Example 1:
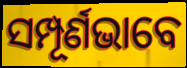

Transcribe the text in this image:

ସମ୍ପୂର୍ଣଭାବେ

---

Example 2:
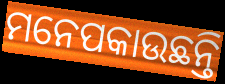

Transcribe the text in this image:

ମନେପକାଉଛନ୍ତି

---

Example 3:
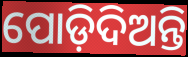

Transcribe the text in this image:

ପୋଡ଼ିଦିଅନ୍ତି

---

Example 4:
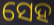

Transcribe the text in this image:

ସେହ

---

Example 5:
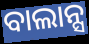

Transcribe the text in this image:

ବାଲାନ୍ସ